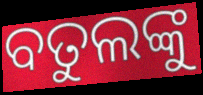
ବତୁଲଙ୍କୁ